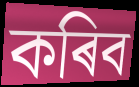
কৰিব